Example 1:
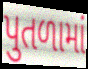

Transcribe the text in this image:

પુતળામાં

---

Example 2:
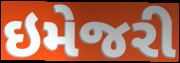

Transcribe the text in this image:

ઇમેજરી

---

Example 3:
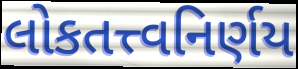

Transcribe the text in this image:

લોકતત્ત્વનિર્ણય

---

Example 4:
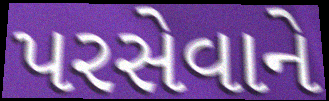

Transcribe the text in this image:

પરસેવાને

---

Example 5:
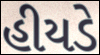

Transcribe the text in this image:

હીયડે